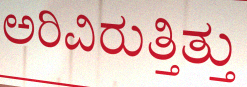
ಅರಿವಿರುತ್ತಿತ್ತು